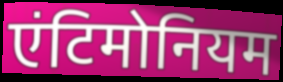
एंटिमोनियम